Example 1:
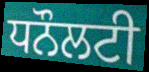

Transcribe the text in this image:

ਧਨੌਲਟੀ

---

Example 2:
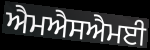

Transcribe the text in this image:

ਐਮਐਸਐਮਈ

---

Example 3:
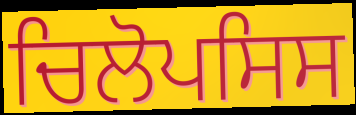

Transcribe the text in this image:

ਚਿਲੋਪਸਿਸ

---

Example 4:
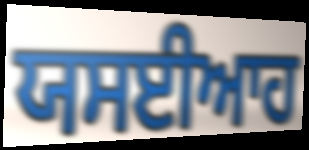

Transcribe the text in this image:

ਯਸਈਆਹ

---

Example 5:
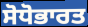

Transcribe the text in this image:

ਸੋਧੋਭਾਰਤ